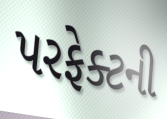
પરફેક્ટની